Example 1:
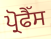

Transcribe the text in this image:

ਪ੍ਰੋਫੈੱਸ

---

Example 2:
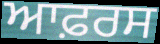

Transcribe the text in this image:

ਆਫ਼ਰਸ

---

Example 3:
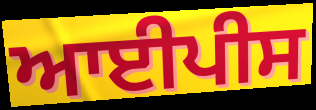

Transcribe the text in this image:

ਆਈਪੀਸ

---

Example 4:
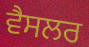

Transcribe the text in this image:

ਵੈਸਲਰ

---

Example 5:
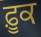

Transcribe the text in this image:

ਫ਼ੂਕ